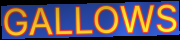
GALLOWS